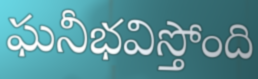
ఘనీభవిస్తోంది